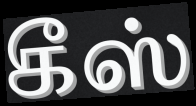
கீஸ்